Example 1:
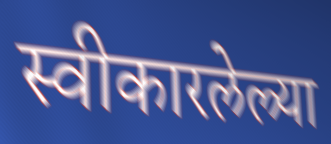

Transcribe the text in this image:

स्वीकारलेल्या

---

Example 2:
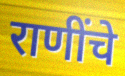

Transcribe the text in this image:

राणींचे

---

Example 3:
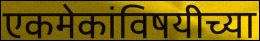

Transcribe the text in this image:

एकमेकांविषयीच्या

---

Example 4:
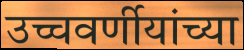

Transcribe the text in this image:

उच्चवर्णीयांच्या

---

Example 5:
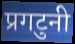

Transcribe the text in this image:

प्रगटुनी